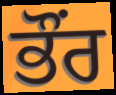
ਭੌਂਰ